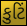
કુટિં